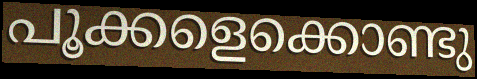
പൂക്കളെക്കൊണ്ടു